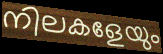
നിലകളേയും